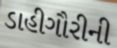
ડાહીગૌરીની